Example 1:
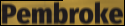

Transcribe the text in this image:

Pembroke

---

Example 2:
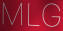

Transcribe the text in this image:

MLG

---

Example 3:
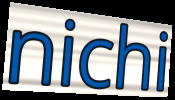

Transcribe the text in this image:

nichi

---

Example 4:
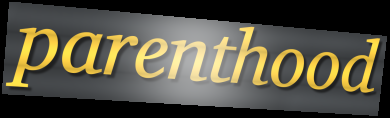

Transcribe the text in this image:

parenthood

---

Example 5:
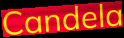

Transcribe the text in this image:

Candela